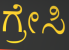
ಗ್ರೇಸಿ